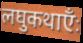
लघुकथाएँः